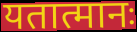
यतात्मानः